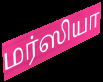
மர்ஸியா